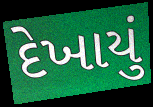
દેખાયું